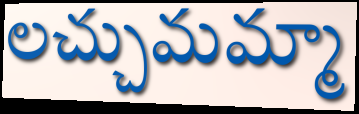
లచ్చుమమ్మా